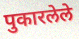
पुकारलेले